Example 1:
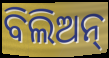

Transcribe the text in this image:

ବିଲିଅନ୍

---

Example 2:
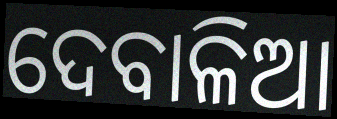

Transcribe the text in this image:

ଦେବାଳିଆ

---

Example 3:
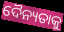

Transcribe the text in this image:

ଦୈନ୍ୟତାକୁ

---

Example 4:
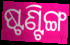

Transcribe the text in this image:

ଷ୍ଟଣ୍ଟିଙ୍ଗ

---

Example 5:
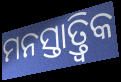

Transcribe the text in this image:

ମନସ୍ତାତ୍ତ୍ୱିକ